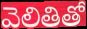
వెలితితో